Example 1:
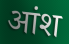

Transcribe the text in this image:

आंश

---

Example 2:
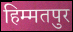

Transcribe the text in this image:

हिम्मतपुर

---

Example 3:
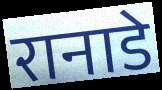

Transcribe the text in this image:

रानाडे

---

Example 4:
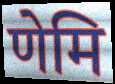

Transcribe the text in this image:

णेमि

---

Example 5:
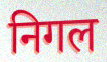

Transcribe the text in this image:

निगल